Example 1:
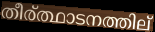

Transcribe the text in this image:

തീര്ത്ഥാടനത്തില്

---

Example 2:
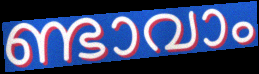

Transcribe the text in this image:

ണ്ടാവാം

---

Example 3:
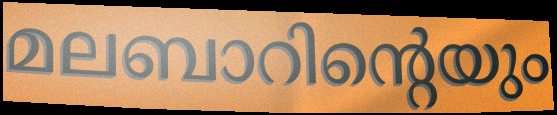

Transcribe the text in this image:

മലബാറിന്റെയും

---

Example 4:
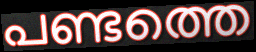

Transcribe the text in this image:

പണ്ടത്തെ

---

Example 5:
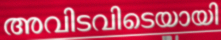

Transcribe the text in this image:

അവിടവിടെയായി